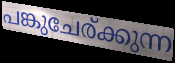
പങ്കുചേര്ക്കുന്ന